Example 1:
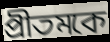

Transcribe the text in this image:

প্রীতমকে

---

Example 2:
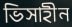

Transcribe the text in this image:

ভিসাহীন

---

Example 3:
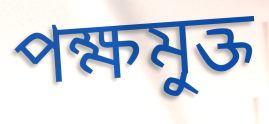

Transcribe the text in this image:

পক্ষমুক্ত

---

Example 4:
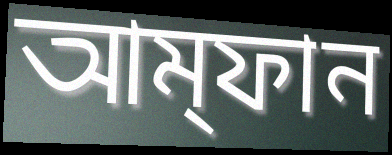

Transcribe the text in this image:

আম্‌ফান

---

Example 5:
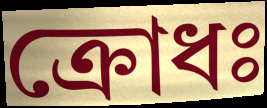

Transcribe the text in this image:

ক্রোধঃ